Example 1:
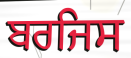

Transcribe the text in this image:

ਬਰਜਿਸ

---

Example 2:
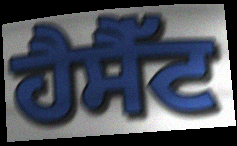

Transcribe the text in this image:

ਹੈਸੈੱਟ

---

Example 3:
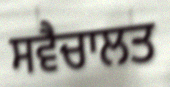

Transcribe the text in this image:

ਸਵੈਚਾਲਤ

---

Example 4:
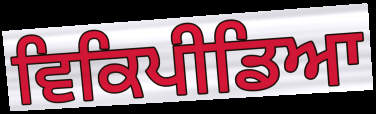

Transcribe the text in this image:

ਵਿਕਿਪੀਡਿਆ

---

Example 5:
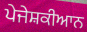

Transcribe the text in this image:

ਪੇਜੇਸ਼ਕੀਆਨ